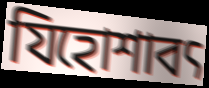
যিহোশাবৎ